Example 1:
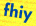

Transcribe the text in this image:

fhiy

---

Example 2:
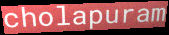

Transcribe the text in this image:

cholapuram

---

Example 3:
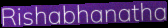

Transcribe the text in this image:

Rishabhanatha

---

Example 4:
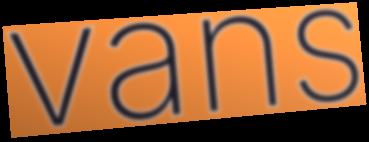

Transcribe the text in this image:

vans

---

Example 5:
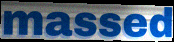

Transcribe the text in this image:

massed